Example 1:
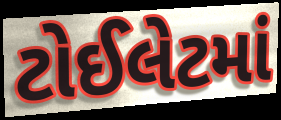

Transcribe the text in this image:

ટોઈલેટમાં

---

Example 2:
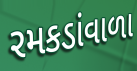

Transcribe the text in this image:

રમકડાંવાળા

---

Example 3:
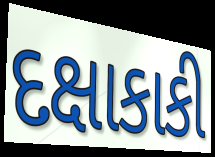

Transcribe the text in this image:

દક્ષાકાકી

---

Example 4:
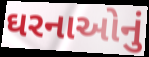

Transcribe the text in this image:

ઘરનાઓનું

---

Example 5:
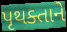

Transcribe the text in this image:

પૃથક્તાને